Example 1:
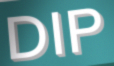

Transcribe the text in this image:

DIP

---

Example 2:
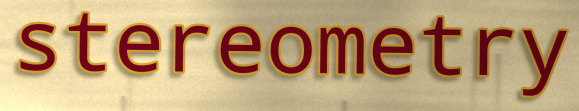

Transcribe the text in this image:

stereometry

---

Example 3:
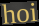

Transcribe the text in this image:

hoi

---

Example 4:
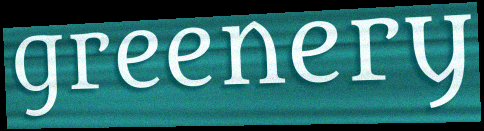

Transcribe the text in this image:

greenery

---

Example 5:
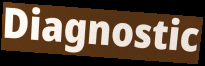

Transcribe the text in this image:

Diagnostic